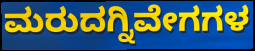
ಮರುದಗ್ನಿವೇಗಗಳ